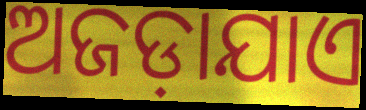
ଅଜଡ଼ାଯାଏ